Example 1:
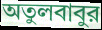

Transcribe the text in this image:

অতুলবাবুর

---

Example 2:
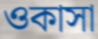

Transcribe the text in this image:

ওকাসা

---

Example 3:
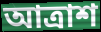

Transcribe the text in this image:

আত্রাশ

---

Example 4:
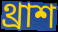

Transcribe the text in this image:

থ্রাশ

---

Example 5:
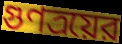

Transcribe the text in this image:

গুণত্রয়ের